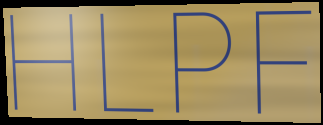
HLPF